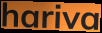
hariva